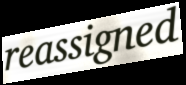
reassigned